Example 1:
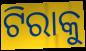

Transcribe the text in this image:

ଟିରାକୁ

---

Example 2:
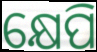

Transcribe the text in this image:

କ୍ଷେପି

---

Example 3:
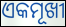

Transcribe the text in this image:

ଏକମୂଖୀ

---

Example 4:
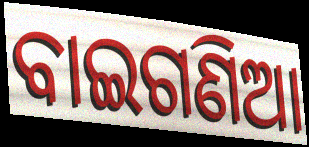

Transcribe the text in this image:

ବାଇଗଣିଆ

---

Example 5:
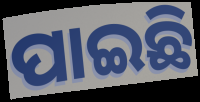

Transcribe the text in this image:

ପାଇଛି